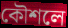
কৌশলে